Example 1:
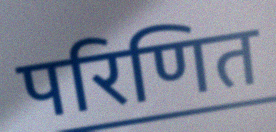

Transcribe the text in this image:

परिणित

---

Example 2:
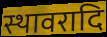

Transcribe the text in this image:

स्थावरादि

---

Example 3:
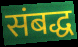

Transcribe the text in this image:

संबद्ध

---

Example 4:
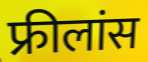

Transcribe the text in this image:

फ्रीलांस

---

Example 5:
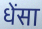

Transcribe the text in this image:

धेंसा